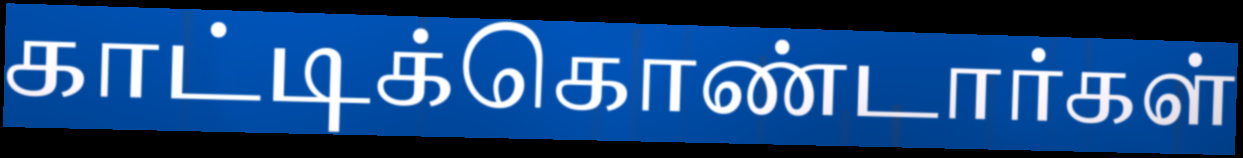
காட்டிக்கொண்டார்கள்